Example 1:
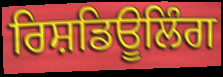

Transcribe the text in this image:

ਰਿਸ਼ਡਿਊਲਿੰਗ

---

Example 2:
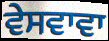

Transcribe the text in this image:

ਵੇਸਵਾਵਾ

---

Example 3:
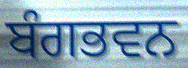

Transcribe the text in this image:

ਬੰਗਭਵਨ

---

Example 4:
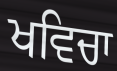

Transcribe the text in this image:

ਖਵਿਚਾ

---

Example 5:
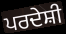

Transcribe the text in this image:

ਪਰਦੇਸ਼ੀ